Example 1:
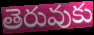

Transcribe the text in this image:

తెరువుకు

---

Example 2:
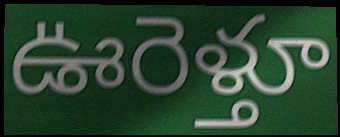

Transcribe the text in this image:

ఊరెళ్తూ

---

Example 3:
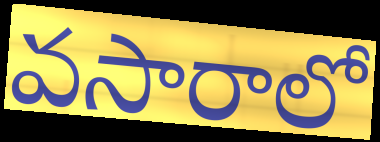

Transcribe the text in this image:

వసారాలో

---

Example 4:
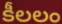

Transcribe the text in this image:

కీలలం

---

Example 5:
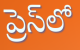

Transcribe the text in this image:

ప్రెస్‌లో